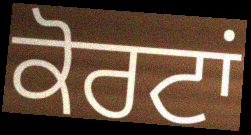
ਕੋਰਟਾਂ